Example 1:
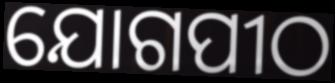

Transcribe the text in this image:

ଯୋଗପୀଠ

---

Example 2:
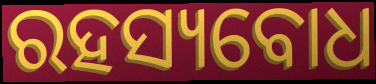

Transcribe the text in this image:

ରହସ୍ୟବୋଧ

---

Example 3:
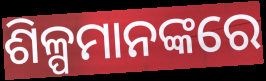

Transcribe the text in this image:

ଶିଳ୍ପମାନଙ୍କରେ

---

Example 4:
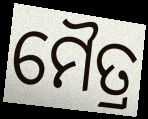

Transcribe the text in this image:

ମୈତ୍ର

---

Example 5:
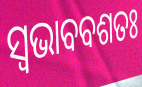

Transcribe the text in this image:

ସ୍ୱଭାବବଶତଃ